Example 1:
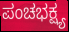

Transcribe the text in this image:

ಪಂಚಭಕ್ಷ್ಯ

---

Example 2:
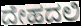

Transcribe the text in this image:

ದೇಹದಲಿ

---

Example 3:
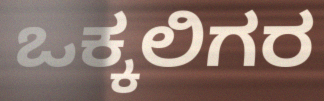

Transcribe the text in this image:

ಒಕ್ಕಲಿಗರ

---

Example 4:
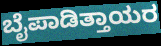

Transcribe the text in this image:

ಬೈಪಾಡಿತ್ತಾಯರ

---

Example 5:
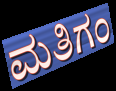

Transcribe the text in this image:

ಮತಿಗಂ